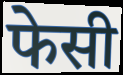
फेसी